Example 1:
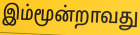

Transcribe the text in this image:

இம்மூன்றாவது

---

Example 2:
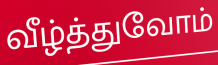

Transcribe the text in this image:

வீழ்த்துவோம்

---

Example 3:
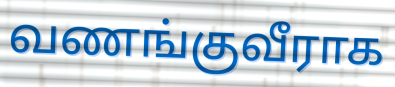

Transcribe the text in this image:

வணங்குவீராக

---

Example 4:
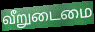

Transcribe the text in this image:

வீறுடைமை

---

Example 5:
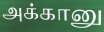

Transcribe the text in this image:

அக்கானு